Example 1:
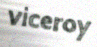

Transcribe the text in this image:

viceroy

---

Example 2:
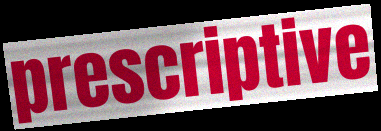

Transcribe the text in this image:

prescriptive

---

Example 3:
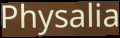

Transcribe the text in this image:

Physalia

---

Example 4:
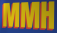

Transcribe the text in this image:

MMH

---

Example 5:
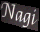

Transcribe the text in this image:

Nagi